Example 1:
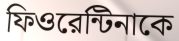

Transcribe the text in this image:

ফিওরেন্টিনাকে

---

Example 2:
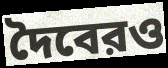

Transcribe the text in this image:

দৈবেরও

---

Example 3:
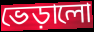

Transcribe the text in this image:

ভেড়ালো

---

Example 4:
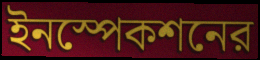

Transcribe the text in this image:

ইনস্পেকশনের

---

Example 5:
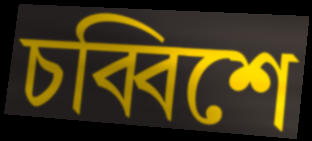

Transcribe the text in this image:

চব্বিশে